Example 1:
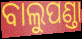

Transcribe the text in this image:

ବାଲୁପଣ୍ଡା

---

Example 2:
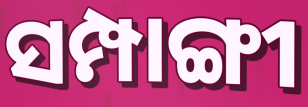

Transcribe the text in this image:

ସମ୍ପାଙ୍ଗୀ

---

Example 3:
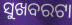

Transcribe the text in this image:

ସୁଖବରଟା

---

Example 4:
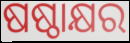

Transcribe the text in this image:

ଷଷ୍ଠାକ୍ଷର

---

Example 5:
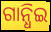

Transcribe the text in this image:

ଗାନ୍ଧିଇ